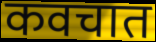
कवचात